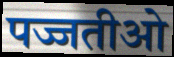
पज्जतीओ